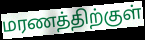
மரணத்திற்குள்